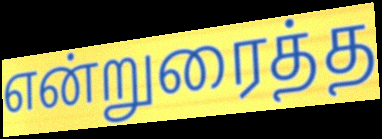
என்றுரைத்த